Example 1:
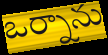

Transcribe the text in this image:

ఒర్నాను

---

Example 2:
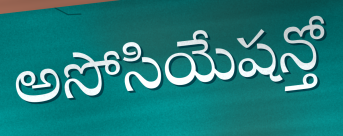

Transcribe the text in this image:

అసోసియేషన్తో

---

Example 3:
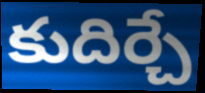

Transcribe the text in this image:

కుదిర్చే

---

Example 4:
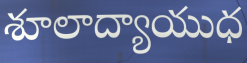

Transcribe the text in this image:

శూలాద్యాయుధ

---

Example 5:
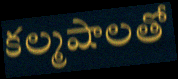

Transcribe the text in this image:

కల్మషాలతో